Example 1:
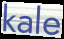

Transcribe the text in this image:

kale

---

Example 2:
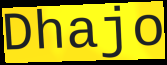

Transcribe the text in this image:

Dhajo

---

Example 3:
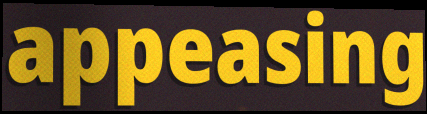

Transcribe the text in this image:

appeasing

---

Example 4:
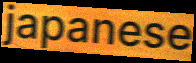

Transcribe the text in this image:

japanese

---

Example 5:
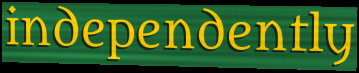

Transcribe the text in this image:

independently